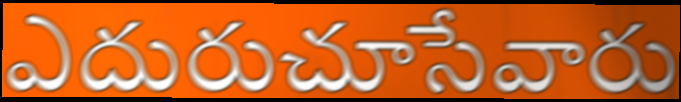
ఎదురుచూసేవారు